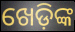
ଖେଡ଼ିଙ୍କ